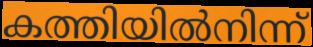
കത്തിയിൽനിന്ന്